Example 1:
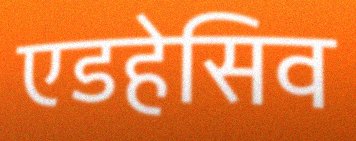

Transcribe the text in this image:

एडहेसिव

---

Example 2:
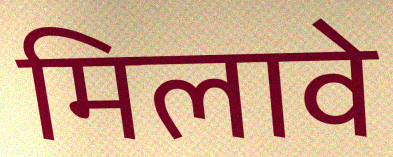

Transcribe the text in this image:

मिलावे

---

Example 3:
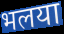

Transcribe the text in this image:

भलया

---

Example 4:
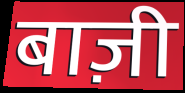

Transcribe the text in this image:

बाज़ी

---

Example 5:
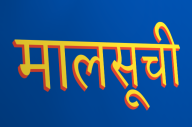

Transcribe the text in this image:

मालसूची